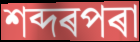
শব্দৰপৰা